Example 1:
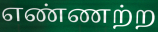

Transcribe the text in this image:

எண்ணற்ற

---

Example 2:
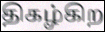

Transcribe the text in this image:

திகழ்கிற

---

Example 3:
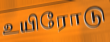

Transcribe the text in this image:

உயிரோடு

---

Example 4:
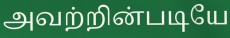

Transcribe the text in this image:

அவற்றின்படியே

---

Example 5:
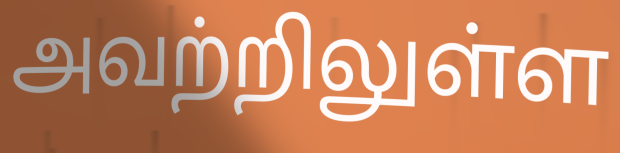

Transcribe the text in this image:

அவற்றிலுள்ள